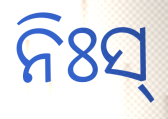
ନିଃସ୍